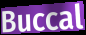
Buccal